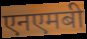
एनएमबी